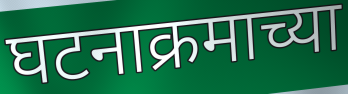
घटनाक्रमाच्या